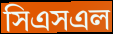
সিএসএল